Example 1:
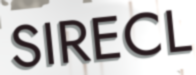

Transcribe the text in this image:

SIRECL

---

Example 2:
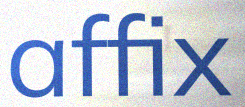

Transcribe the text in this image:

affix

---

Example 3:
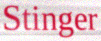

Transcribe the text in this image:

Stinger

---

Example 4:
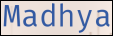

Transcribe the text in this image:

Madhya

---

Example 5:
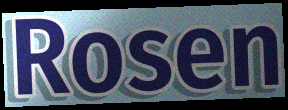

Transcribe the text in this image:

Rosen